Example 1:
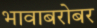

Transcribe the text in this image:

भावाबरोबर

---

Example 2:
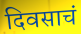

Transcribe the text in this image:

दिवसाचं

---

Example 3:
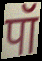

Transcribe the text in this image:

पॉ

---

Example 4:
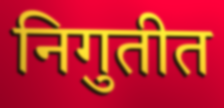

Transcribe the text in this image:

निगुतीत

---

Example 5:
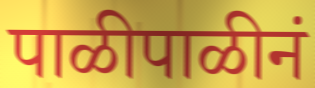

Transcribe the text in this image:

पाळीपाळीनं